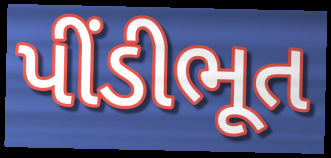
પીંડીભૂત